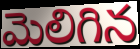
మెలిగిన